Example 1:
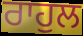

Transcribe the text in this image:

ਰਾਹੁਲ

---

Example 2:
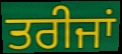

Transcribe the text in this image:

ਤਰੀਜਾਂ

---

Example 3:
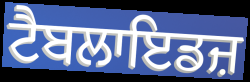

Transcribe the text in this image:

ਟੈਬਲਾਇਡਜ਼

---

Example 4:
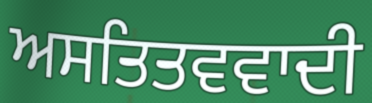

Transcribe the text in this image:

ਅਸਤਿਤਵਵਾਦੀ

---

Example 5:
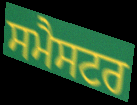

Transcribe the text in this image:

ਸਮੈਸਟਰ